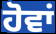
ਹੋਵਾਂ